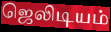
ஜெலிடியம்